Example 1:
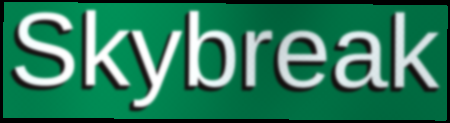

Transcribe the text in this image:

Skybreak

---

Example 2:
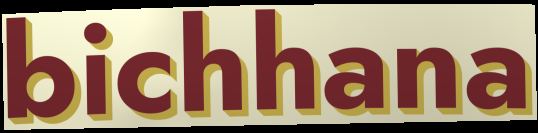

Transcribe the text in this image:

bichhana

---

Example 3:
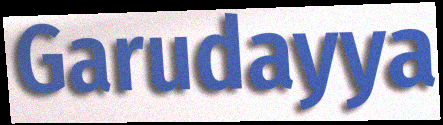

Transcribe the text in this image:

Garudayya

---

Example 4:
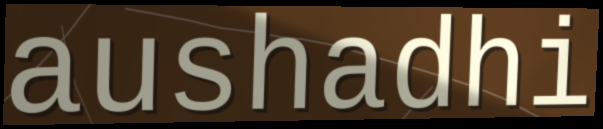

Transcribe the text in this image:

aushadhi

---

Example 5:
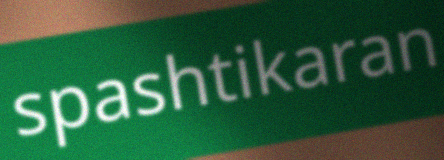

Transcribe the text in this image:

spashtikaran